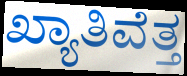
ಖ್ಯಾತಿವೆತ್ತ